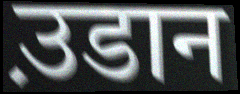
उ़डान